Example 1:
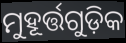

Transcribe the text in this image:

ମୁହୂର୍ତ୍ତଗୁଡ଼ିକ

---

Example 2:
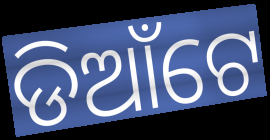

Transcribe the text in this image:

ଡିଆଁଟେ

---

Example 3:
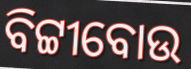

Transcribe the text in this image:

ବିଟ୍ଟୀବୋଉ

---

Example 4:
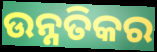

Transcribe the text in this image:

ଉନ୍ନତିକର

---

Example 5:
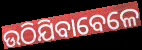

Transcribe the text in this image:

ଉଠିଯିବାବେଳେ